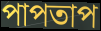
পাপতাপ